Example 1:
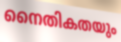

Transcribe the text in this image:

നൈതികതയും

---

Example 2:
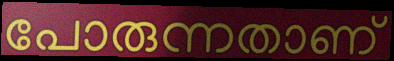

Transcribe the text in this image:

പോരുന്നതാണ്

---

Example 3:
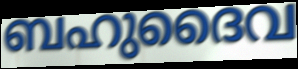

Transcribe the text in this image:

ബഹുദൈവ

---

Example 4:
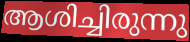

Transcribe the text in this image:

ആശിച്ചിരുന്നു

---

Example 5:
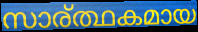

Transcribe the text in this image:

സാര്ത്ഥകമായ